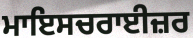
ਮਾਇਸਚਰਾਈਜ਼ਰ